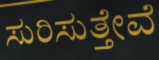
ಸುರಿಸುತ್ತೇವೆ